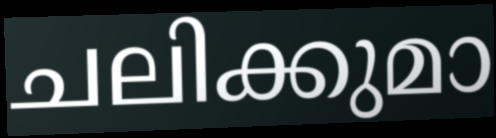
ചലിക്കുമാ